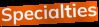
Specialties